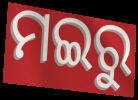
ମଇରୁ